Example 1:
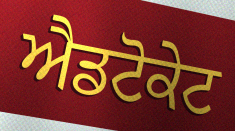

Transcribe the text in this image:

ਐਡਟੋਕੇਟ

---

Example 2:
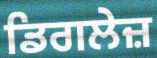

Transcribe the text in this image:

ਡਿਗਲੇਜ਼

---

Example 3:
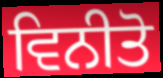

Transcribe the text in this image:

ਵਿਨੀਤੋ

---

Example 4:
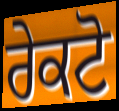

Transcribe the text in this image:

ਰੇਕਟੋ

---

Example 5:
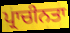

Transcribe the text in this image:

ਪ੍ਰਾਚੀਨਤਾ